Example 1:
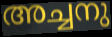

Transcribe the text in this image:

അച്ചനു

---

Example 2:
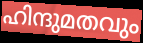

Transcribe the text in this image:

ഹിന്ദുമതവും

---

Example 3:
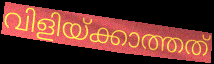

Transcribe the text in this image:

വിളിയ്ക്കാത്തത്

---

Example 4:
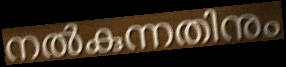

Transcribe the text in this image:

നൽകുന്നതിനും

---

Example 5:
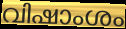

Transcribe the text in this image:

വിഷാംശം